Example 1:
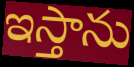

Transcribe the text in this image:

ఇస్తాను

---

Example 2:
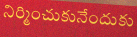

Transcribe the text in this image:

నిర్మించుకునేందుకు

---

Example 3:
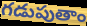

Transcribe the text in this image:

గడుపుతాం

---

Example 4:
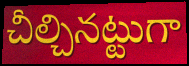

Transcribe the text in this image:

చీల్చినట్టుగా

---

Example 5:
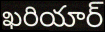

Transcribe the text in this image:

ఖరియార్